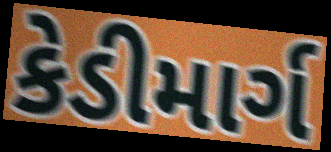
કેડીમાર્ગ